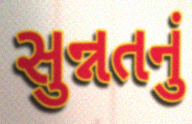
સુન્નતનું